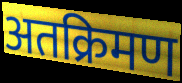
अतक्रिमण